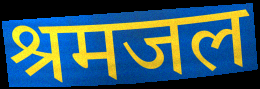
श्रमजल